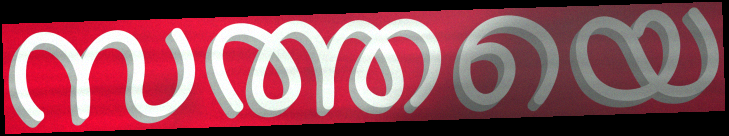
സത്തയെ